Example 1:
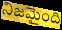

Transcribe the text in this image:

నిజమైంది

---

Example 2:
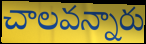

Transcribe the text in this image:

చాలవన్నారు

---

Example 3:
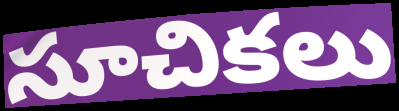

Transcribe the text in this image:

సూచికలు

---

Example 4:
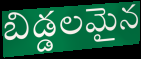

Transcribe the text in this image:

బిడ్డలమైన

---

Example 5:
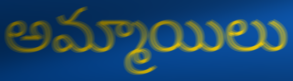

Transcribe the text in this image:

అమ్మాయిలు